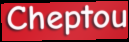
Cheptou